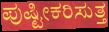
ಪುಷ್ಟೀಕರಿಸುತ್ತ